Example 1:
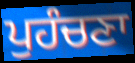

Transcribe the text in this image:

ਪੁਹੰਚਣਾ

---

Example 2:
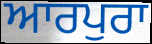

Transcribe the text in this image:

ਆਰਪੁਰਾ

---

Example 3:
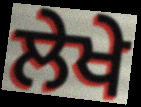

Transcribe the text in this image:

ਲੇਖੇ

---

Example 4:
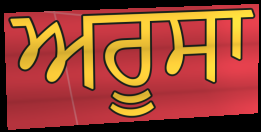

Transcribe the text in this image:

ਅਰੂਸਾ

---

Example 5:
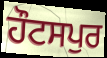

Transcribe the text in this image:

ਹੌਟਸਪੁਰ